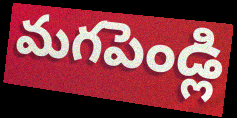
మగపెండ్లి